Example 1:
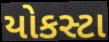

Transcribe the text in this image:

યોકસ્ટા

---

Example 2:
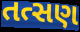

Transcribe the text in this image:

તત્સણ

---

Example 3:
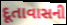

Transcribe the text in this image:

દૂતાવાસની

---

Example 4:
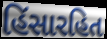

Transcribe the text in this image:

હિંસારહિત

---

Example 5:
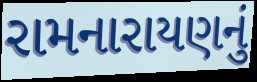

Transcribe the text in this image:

રામનારાયણનું